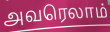
அவரெலாம்